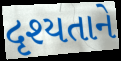
દૃશ્યતાને